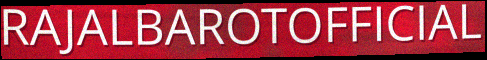
RAJALBAROTOFFICIAL